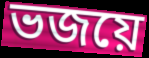
ভজয়ে